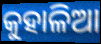
କୁହାଳିଆ